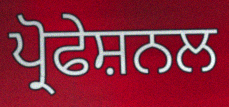
ਪ੍ਰੋਫੇਸ਼ਨਲ